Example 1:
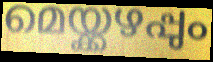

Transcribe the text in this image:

മെയ്ക്കഴപ്പും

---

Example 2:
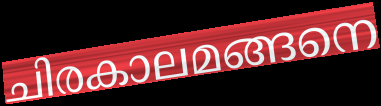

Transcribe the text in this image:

ചിരകാലമങ്ങനെ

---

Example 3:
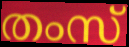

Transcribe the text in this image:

തംസ്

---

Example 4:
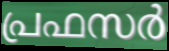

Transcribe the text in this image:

പ്രഫസർ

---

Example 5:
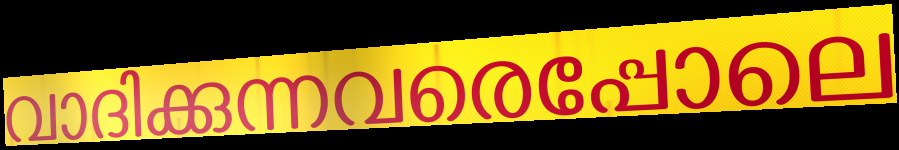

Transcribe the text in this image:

വാദിക്കുന്നവരെപ്പോലെ